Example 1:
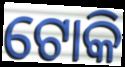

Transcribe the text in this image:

ଟୋକି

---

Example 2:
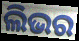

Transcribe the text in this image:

ଲିଭର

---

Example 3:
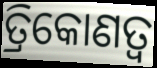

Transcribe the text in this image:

ତ୍ରିକୋଣତ୍ଵ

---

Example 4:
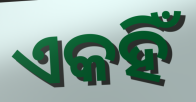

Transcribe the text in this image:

ଏକହିଁ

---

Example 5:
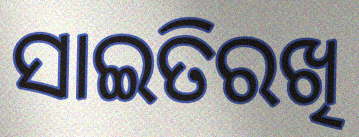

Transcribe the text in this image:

ସାଇତିରଖି